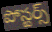
పోస్టర్స్